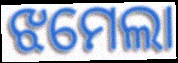
ଝମେଲା